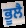
ਭੂਲੈ